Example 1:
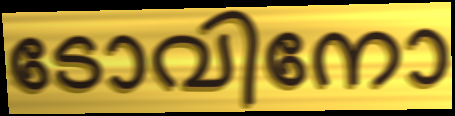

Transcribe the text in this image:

ടോവിനോ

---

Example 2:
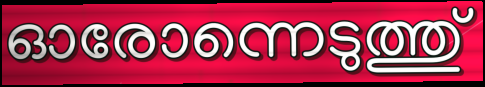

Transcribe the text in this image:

ഓരോന്നെടുത്തു്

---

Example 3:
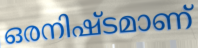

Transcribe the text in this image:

ഒരനിഷ്ടമാണ്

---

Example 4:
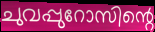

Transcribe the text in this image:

ചുവപ്പുറോസിന്റെ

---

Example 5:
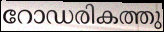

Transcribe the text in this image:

റോഡരികത്തു